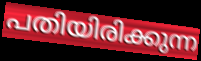
പതിയിരിക്കുന്ന